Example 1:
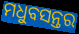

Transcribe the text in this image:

ମଧୁବସନ୍ତର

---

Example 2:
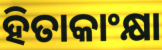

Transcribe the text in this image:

ହିତାକାଂକ୍ଷା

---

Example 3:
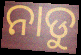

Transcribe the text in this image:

ନାଡୁ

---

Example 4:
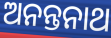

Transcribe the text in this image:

ଅନନ୍ତନାଥ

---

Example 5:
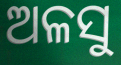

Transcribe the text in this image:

ଅଳସୁ